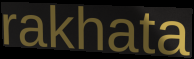
rakhata